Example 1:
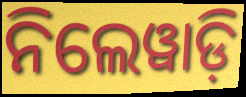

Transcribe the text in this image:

ନିଲେୱାଡ଼ି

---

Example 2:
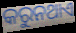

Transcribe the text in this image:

କରୁନଥାଏ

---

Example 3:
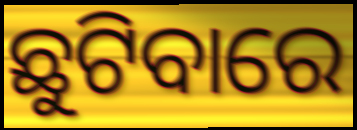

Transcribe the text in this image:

ଛୁଟିବାରେ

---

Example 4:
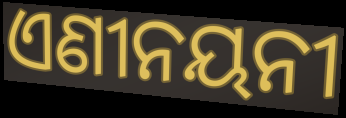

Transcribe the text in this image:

ଏଣୀନୟନୀ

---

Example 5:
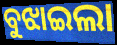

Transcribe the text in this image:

ବୁଝାଇଲା